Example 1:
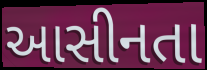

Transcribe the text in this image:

આસીનતા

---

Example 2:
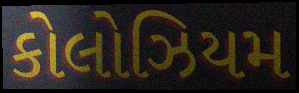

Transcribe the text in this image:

કોલોઝિયમ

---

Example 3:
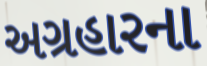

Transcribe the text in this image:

અગ્રહારના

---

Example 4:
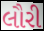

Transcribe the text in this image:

લૌરી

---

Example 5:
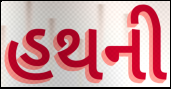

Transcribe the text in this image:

હથની